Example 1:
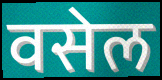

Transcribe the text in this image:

वसेल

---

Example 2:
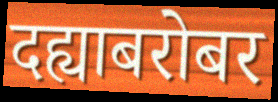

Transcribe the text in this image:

दह्याबरोबर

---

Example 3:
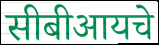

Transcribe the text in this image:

सीबीआयचे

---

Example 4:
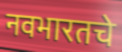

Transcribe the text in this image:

नवभारतचे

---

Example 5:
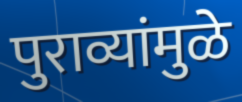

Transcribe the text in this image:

पुराव्यांमुळे